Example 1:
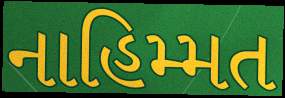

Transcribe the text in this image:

નાહિમ્મત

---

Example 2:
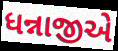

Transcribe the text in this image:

ધન્નાજીએ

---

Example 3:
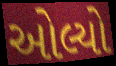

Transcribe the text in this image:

ઓલ્યો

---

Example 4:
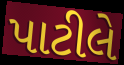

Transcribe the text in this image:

પાટીલે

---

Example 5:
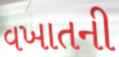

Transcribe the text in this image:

વખાતની